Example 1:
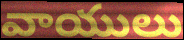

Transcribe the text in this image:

వాయులు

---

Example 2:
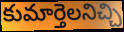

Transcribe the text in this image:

కుమార్తెలనిచ్చి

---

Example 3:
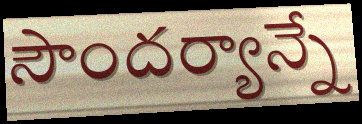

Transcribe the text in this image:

సౌందర్యాన్నే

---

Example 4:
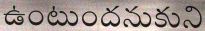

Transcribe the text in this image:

ఉంటుందనుకుని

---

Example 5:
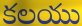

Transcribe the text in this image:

కలయు